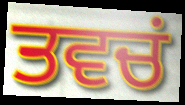
ਤਵਚਂ